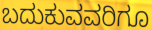
ಬದುಕುವವರಿಗೂ